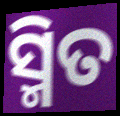
ସ୍ମିତ